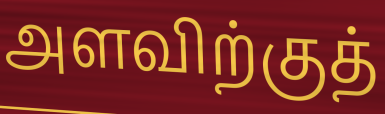
அளவிற்குத்